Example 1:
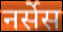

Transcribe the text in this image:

नर्सेस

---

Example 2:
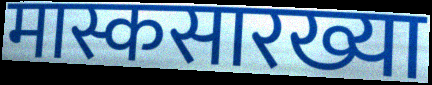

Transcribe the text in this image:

मास्कसारख्या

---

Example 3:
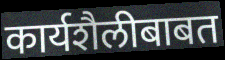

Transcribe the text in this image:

कार्यशैलीबाबत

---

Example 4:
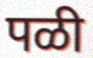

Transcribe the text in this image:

पळी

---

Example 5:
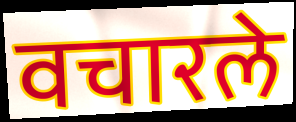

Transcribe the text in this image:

वचारले